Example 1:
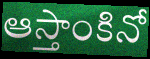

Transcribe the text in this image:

ఆస్తాంకినో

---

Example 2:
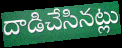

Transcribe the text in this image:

దాడిచేసినట్లు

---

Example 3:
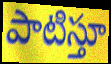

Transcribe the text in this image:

పాటిస్తూ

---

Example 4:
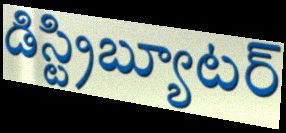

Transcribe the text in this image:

డిస్ట్రిబ్యూటర్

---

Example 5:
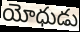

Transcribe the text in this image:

యోధుడు